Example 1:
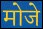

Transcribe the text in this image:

मोजे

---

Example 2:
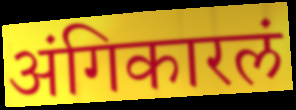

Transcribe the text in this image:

अंगिकारलं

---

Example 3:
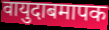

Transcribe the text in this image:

वायुदाबमापक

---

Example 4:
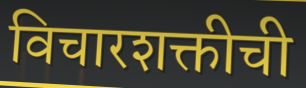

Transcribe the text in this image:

विचारशक्तीची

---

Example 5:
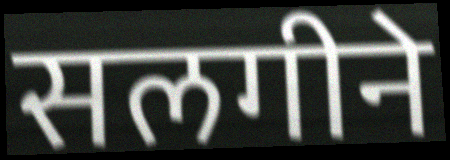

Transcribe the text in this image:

सलगीने